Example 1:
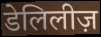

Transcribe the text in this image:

डेलिलीज़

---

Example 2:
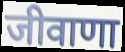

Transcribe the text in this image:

जीवाणा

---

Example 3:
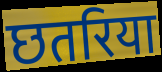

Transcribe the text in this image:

छतरिया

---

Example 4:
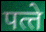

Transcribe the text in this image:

पत्‍ते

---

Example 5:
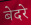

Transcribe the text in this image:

बेदरे